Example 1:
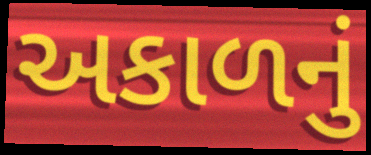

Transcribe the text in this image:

અકાળનું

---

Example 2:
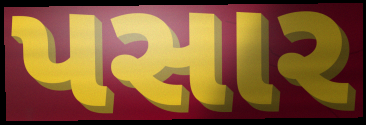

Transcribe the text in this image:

પસાર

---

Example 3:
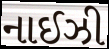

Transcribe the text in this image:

નાઈઝી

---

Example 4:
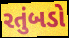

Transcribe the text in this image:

રતુંબડો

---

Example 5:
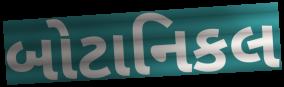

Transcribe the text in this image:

બોટાનિકલ